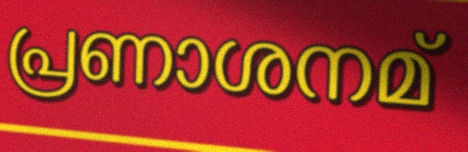
പ്രണാശനമ്